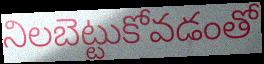
నిలబెట్టుకోవడంతో